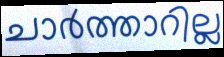
ചാർത്താറില്ല